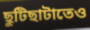
ছুটিছাটাতেও